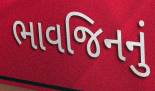
ભાવજિનનું